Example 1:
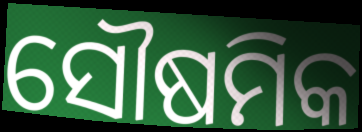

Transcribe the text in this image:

ସୌଷମିକ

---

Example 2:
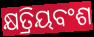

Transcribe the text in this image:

କ୍ଷତ୍ରିୟବଂଶ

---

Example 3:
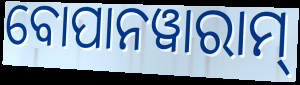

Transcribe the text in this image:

ବୋପାନୱାରାମ୍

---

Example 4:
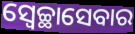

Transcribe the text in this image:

ସ୍ୱେଚ୍ଛାସେବାର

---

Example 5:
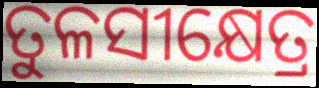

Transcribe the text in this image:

ତୁଳସୀକ୍ଷେତ୍ର